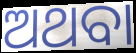
ଅଥବା